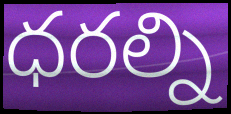
ధరల్ని